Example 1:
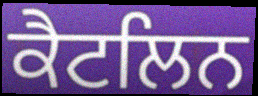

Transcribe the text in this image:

ਕੈਟਲਿਨ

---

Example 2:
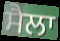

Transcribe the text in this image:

ਸੈਲਾ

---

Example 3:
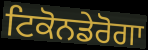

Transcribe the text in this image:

ਟਿਕੋਨਡੇਰੋਗਾ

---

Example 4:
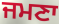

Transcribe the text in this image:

ਜਮਣਾ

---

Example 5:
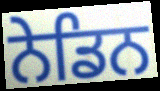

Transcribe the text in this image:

ਨੇਡਿਨ